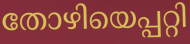
തോഴിയെപ്പറ്റി